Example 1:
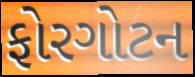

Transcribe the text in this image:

ફોરગોટન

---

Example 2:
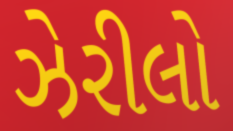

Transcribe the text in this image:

ઝેરીલો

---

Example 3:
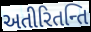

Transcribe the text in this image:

અતીરિતન્તિ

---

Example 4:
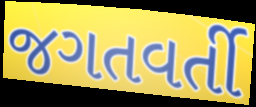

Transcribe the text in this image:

જગતવર્તી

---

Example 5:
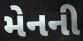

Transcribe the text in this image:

મેનની